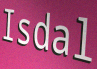
Isdal